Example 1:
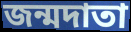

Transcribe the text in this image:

জন্মদাতা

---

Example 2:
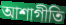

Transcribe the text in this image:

আশাগীতি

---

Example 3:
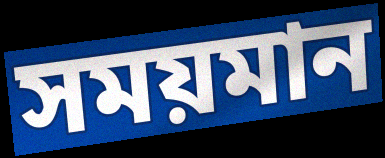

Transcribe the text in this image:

সময়মান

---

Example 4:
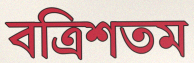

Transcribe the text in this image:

বত্রিশতম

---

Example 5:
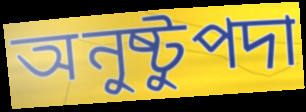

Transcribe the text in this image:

অনুষ্টুপদা